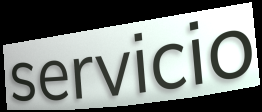
servicio